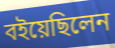
বইয়েছিলেন